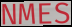
NMES